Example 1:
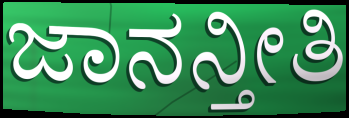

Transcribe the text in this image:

ಜಾನನ್ತೀತಿ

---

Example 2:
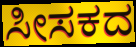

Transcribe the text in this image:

ಸೀಸಕದ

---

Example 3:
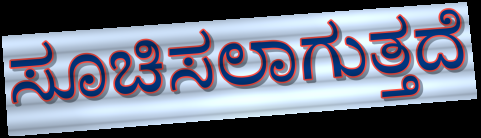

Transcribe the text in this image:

ಸೂಚಿಸಲಾಗುತ್ತದೆ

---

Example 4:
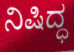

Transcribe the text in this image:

ನಿಷಿದ್ಧ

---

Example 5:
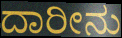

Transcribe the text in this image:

ದಾರೀನು